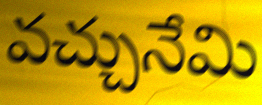
వచ్చునేమి